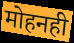
मोहनही